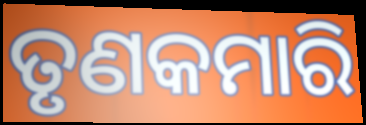
ତୃଣକମାରି